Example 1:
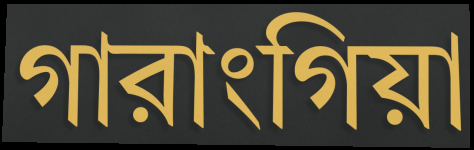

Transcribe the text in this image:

গারাংগিয়া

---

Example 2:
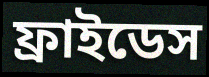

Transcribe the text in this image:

ফ্রাইডেস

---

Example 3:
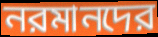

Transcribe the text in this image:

নরমানদের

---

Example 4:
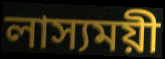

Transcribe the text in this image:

লাস্যময়ী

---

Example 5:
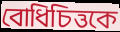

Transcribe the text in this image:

বোধিচিত্তকে